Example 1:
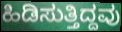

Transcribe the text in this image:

ಹಿಡಿಸುತ್ತಿದ್ದವು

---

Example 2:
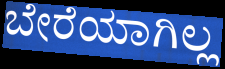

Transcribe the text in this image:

ಬೇರೆಯಾಗಿಲ್ಲ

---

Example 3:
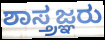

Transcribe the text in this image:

ಶಾಸ್ತ್ರಜ್ಞರು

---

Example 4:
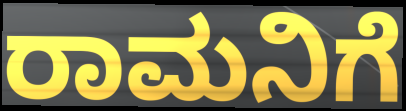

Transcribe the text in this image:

ರಾಮನಿಗೆ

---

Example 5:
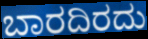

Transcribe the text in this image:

ಬಾರದಿರದು